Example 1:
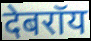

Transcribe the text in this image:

देबरॉय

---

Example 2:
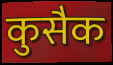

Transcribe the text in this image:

कुसैक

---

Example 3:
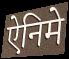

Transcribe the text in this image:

ऐनिमे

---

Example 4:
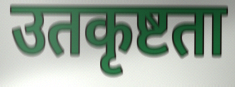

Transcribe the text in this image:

उतकृष्टता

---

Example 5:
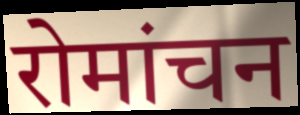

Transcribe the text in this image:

रोमांचन